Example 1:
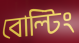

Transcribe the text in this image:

বোল্টিং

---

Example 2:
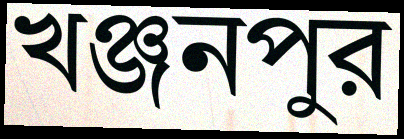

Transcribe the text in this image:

খঞ্জনপুর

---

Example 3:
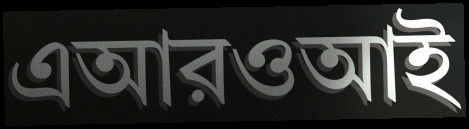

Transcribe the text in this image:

এআরওআই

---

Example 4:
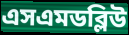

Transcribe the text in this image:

এসএমডব্লিউ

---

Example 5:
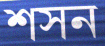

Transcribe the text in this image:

শসন